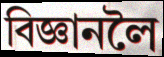
বিজ্ঞানলৈ